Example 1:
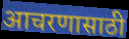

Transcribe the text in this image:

आचरणासाठी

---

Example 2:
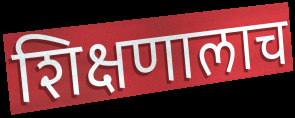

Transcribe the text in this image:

शिक्षणालाच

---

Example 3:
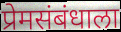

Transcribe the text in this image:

प्रेमसंबंधाला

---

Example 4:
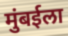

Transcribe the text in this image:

मुंबईला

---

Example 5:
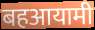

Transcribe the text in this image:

बहआयामी